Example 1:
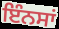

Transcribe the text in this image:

ਇੰਨਸਾਂ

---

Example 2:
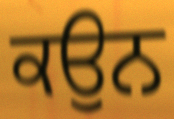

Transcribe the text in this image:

ਕਉਨ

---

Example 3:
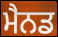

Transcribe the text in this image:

ਮੈਨਡ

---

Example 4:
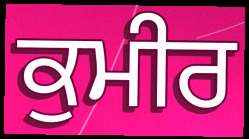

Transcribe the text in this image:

ਕੁਮੀਰ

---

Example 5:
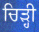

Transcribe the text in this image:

ਚਿੜ੍ਹੀ